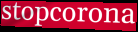
stopcorona